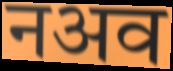
नअव